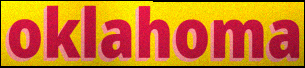
oklahoma